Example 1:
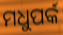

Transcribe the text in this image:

ମଧୁପର୍କ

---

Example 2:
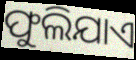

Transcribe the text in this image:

ଫୁଲିଯାଏ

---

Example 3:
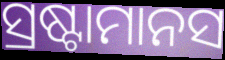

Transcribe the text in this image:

ସ୍ରଷ୍ଟାମାନସ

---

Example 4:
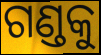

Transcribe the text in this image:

ଗଣ୍ଡକୁ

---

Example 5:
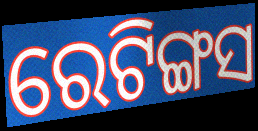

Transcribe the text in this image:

ରେଟିଙ୍ଗସ